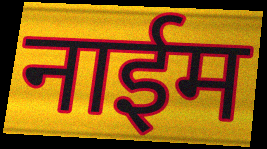
नाईम